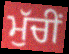
ਮੁੱਚੀਂ